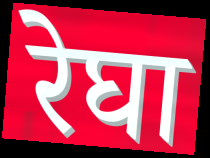
रेघा